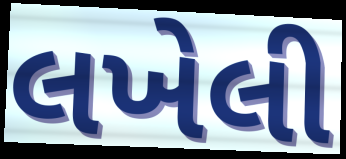
લખેલી